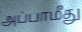
அப்பாமீது